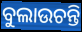
ବୁଲାଉଚନ୍ତି